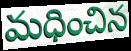
మధించిన